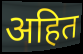
अहित